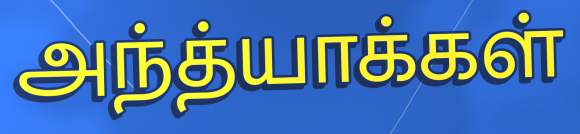
அந்த்யாக்கள்